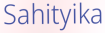
Sahityika